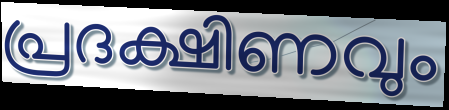
പ്രദക്ഷിണവും